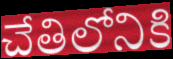
చేతిలోనికి